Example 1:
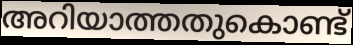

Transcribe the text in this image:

അറിയാത്തതുകൊണ്ട്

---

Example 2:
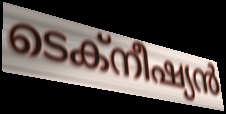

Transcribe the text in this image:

ടെക്നീഷ്യൻ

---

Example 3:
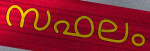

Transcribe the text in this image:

സഫലം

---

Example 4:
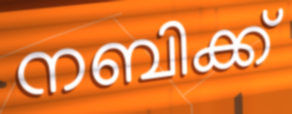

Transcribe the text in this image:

നബിക്ക്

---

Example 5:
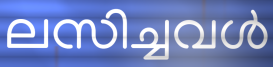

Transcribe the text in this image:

ലസിച്ചവൾ